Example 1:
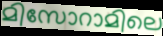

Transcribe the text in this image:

മിസോറാമിലെ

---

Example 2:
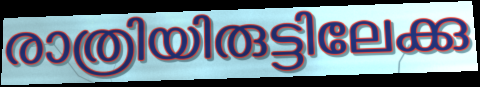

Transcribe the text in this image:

രാത്രിയിരുട്ടിലേക്കു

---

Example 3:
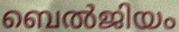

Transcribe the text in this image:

ബെൽജിയം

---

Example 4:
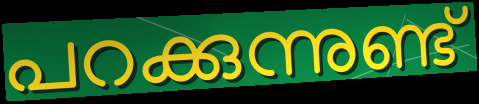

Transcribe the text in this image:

പറക്കുന്നുണ്ട്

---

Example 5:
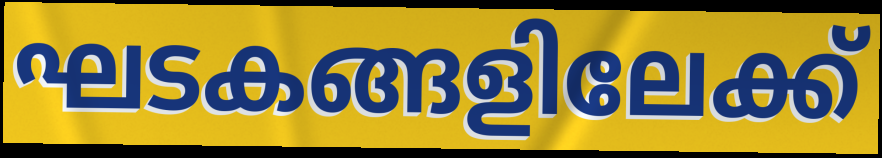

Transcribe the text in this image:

ഘടകങ്ങളിലേക്ക്